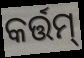
କର୍ତ୍ତମ୍